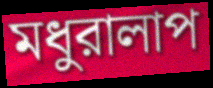
মধুরালাপ